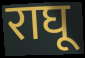
राघू